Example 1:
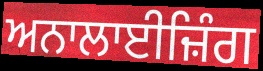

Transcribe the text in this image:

ਅਨਾਲਾਈਜ਼ਿੰਗ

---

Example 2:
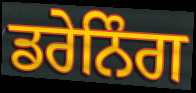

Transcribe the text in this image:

ਡਰੇਨਿੰਗ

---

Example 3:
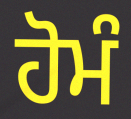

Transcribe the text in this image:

ਹੋਮੰ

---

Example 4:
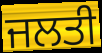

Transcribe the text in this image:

ਜਲਤੀ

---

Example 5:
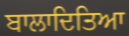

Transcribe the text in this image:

ਬਾਲਾਦਿਤਿਆ